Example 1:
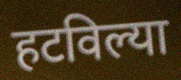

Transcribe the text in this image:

हटविल्या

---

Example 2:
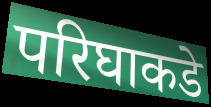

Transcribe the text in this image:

परिघाकडे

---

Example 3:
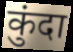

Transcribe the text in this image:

कुंदा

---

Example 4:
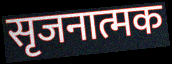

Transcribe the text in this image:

सृजनात्मक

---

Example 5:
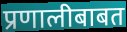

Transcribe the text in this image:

प्रणालीबाबत